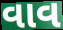
વાવ